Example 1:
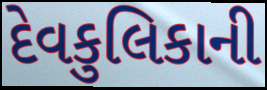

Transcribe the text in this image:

દેવકુલિકાની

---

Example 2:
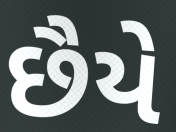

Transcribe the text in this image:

છૈયે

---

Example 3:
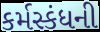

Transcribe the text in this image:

કર્મસ્કંધની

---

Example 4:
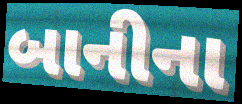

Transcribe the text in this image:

બાનીના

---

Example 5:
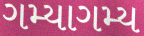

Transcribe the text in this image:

ગમ્યાગમ્ય